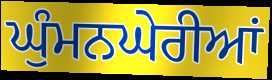
ਘੁੰਮਨਘੇਰੀਆਂ